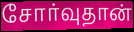
சோர்வுதான்